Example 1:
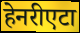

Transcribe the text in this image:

हेनरीएटा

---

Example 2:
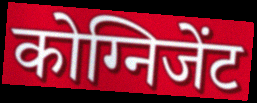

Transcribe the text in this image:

कोग्निजेंट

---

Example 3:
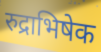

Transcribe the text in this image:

रुद्राभिषेक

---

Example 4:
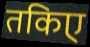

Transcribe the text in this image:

तकिए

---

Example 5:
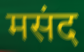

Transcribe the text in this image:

मसंद